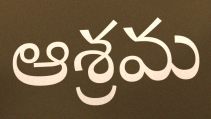
ఆశ్రమ